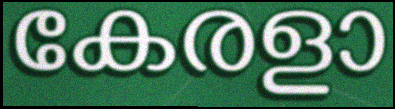
കേരളാ